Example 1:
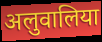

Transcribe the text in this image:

अलुवालिया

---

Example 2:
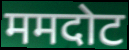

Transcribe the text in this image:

ममदोट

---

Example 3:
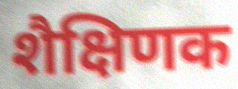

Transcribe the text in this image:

शैक्षिणक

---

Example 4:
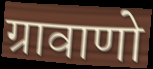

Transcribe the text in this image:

ग्रावाणो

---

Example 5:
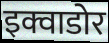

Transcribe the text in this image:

इक्‍वाडोर